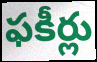
ఫకీర్లు